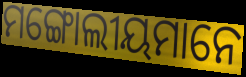
ମଙ୍ଗୋଲୀୟମାନେ